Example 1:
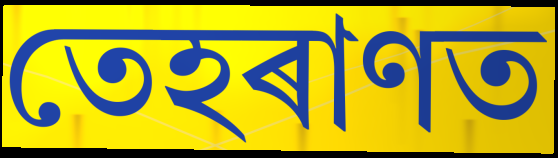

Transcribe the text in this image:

তেহৰাণত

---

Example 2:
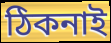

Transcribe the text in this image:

ঠিকনাই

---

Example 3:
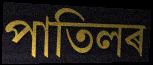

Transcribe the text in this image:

পাতিলৰ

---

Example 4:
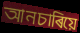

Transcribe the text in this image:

আনচাৰিয়ে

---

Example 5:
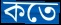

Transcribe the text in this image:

কতে